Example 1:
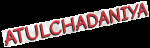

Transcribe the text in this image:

ATULCHADANIYA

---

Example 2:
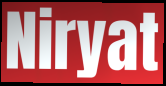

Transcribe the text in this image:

Niryat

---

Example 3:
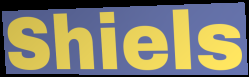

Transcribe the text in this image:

Shiels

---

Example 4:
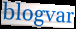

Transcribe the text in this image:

blogvar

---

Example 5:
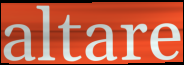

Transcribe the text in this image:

altare